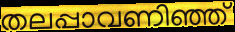
തലപ്പാവണിഞ്ഞ്